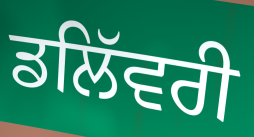
ਡਲਿੱਵਰੀ